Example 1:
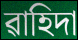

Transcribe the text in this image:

ৱাহিদা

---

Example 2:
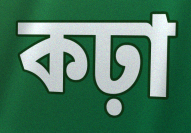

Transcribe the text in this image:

কঢ়া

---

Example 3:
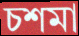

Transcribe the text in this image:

চশমা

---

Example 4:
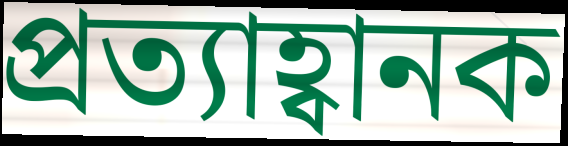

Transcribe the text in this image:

প্ৰত্যাহ্বানক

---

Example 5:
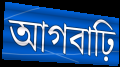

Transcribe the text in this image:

আগবাঢ়ি